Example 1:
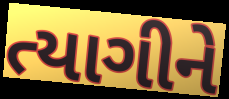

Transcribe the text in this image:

ત્યાગીને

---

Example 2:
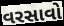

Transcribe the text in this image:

વરસાવો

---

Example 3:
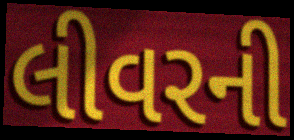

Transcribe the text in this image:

લીવરની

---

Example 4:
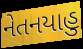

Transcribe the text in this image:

નેતનયાહુ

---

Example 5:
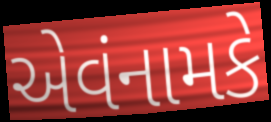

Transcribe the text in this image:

એવંનામકે